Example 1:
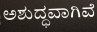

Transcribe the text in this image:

ಅಶುದ್ಧವಾಗಿವೆ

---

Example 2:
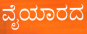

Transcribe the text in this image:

ವೈಯಾರದ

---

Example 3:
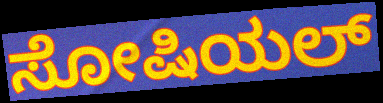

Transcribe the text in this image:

ಸೋಷಿಯಲ್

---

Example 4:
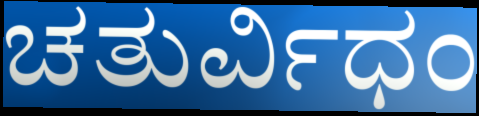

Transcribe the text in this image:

ಚತುರ್ವಿಧಂ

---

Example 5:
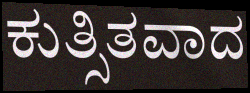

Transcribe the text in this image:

ಕುತ್ಸಿತವಾದ